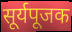
सूर्यपूजक